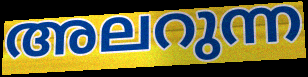
അലറുന്ന